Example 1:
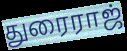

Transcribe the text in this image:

துரைராஜ்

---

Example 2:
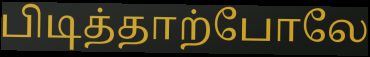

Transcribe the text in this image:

பிடித்தாற்போலே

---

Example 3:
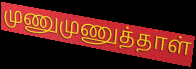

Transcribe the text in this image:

முணுமுணுத்தாள்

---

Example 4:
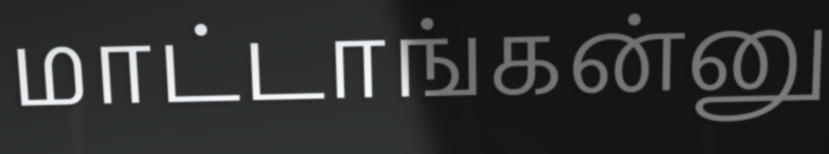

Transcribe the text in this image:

மாட்டாங்கன்னு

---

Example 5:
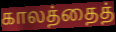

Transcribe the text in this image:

காலத்தைத்